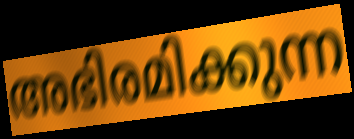
അഭിരമിക്കുന്ന